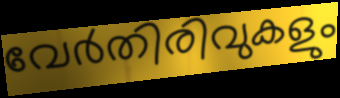
വേർതിരിവുകളും